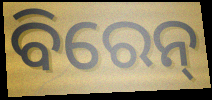
ବିରେନ୍